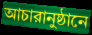
আচারানুষ্ঠানে